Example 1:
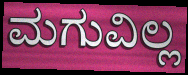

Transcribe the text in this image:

ಮಗುವಿಲ್ಲ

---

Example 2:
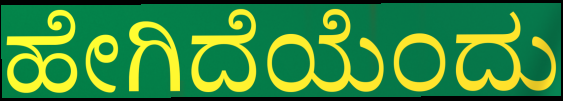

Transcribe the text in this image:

ಹೇಗಿದೆಯೆಂದು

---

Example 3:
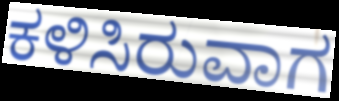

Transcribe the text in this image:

ಕಳಿಸಿರುವಾಗ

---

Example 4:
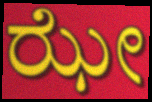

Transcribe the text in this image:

ಝೇ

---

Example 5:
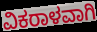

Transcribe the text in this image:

ವಿಕರಾಳವಾಗಿ